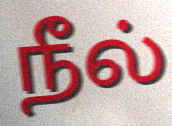
நீல்